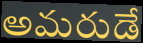
అమరుడే